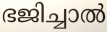
ഭജിച്ചാൽ